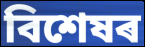
বিশেষৰ